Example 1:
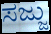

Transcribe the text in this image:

ಸಜ್ಜು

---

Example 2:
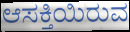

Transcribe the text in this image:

ಆಸಕ್ತಿಯಿರುವ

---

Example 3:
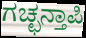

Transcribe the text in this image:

ಗಚ್ಛನ್ತಾಪಿ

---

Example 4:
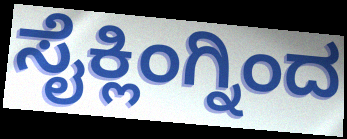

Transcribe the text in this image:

ಸೈಕ್ಲಿಂಗ್ನಿಂದ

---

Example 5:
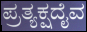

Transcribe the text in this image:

ಪ್ರತ್ಯಕ್ಷದೈವ